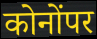
कोनोंपर